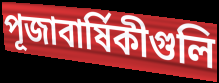
পূজাবার্ষিকীগুলি